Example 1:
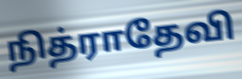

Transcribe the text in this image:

நித்ராதேவி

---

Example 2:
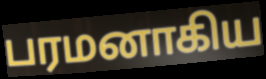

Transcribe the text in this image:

பரமனாகிய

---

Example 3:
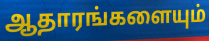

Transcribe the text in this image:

ஆதாரங்களையும்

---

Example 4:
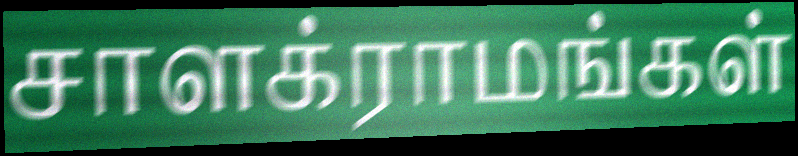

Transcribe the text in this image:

சாளக்ராமங்கள்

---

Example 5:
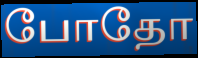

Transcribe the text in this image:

போதோ